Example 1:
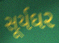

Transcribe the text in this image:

સૂર્યઘર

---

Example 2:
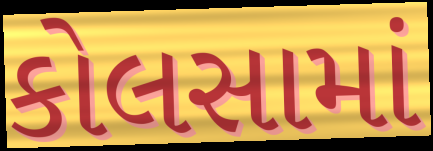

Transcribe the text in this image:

કોલસામાં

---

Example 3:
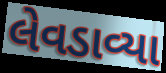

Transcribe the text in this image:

લેવડાવ્યા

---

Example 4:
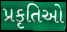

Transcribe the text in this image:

પ્રકૃતિઓ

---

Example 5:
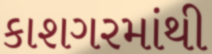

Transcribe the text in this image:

કાશગરમાંથી